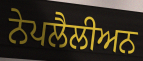
ਨੇਪਲੈਲੀਅਨ